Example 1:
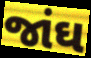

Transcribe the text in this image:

જાંઘ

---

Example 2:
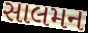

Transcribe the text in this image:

સાલમન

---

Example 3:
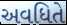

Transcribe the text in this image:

અવધિતે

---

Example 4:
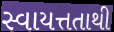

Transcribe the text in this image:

સ્વાયત્તતાથી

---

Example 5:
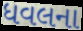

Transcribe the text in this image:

ધવલના